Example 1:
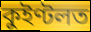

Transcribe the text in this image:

কুইণ্টলত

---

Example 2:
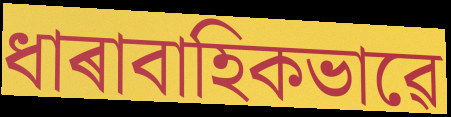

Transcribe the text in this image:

ধাৰাবাহিকভাৱে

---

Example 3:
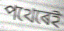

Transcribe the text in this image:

পথেৰেই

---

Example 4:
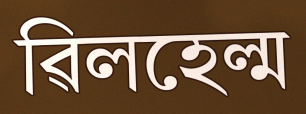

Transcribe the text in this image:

ৱিলহেল্ম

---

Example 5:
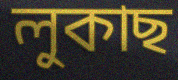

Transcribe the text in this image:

লুকাছ